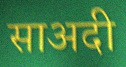
साअदी